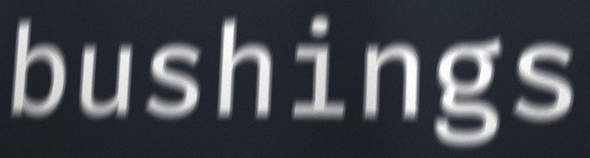
bushings